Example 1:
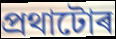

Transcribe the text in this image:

প্ৰথাটোৰ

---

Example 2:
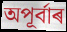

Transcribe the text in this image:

অপূৰ্বাৰ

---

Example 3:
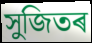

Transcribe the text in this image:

সুজিতৰ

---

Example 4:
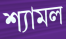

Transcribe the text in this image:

শ্যামল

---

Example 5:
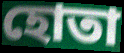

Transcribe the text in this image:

হোতা